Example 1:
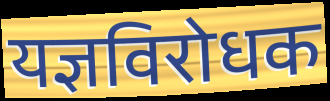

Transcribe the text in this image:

यज्ञविरोधक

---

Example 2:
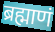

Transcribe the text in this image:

ब्रह्माणं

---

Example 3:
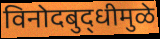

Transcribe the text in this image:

विनोदबुद्धीमुळे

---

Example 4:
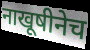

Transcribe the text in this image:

नाखूषीनेच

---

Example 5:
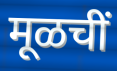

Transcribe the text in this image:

मूळचीं